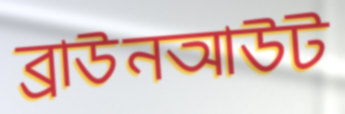
ব্রাউনআউট